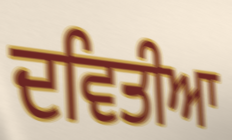
ਦਵਿਤੀਆ